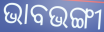
ଭାବଭଙ୍ଗୀ